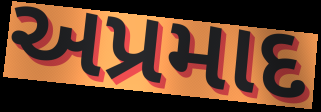
અપ્રમાદ